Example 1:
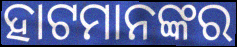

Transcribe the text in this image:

ହାଟମାନଙ୍କର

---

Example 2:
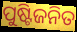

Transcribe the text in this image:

ପୁଷ୍ଟିଜନିତ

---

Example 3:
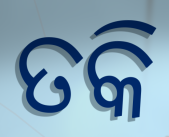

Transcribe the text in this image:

ତକି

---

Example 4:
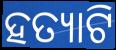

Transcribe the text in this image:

ହତ୍ୟାଟି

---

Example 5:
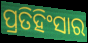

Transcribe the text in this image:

ପ୍ରତିହିଂସାର